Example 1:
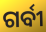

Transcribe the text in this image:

ଗର୍ବୀ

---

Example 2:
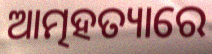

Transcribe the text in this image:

ଆତ୍ମହତ୍ୟାରେ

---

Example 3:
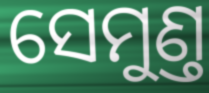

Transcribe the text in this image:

ସେମୁଣ୍ତ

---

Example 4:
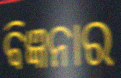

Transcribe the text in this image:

ବିଜ୍ଞନାର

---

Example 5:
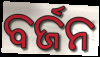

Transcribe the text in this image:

ବର୍ଜନ